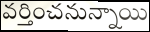
వర్తించనున్నాయి